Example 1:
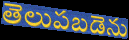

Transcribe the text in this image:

తెలుపబడెను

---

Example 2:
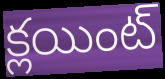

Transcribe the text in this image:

క్లయింట్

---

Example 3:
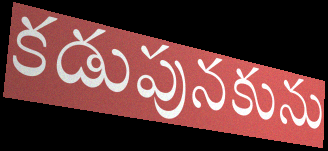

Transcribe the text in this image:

కడుపునకును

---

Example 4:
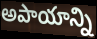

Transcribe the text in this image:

అపాయాన్ని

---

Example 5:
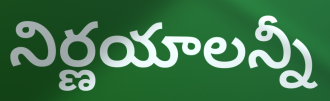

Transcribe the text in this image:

నిర్ణయాలన్నీ